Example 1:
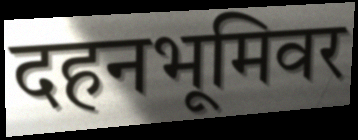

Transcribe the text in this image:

दहनभूमिवर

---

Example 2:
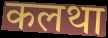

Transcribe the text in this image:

कलथा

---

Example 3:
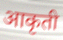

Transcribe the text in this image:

आकृती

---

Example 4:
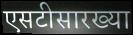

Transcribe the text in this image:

एसटीसारख्या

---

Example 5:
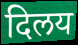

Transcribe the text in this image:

दिलय